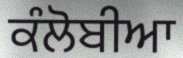
ਕੰਲੋਬੀਆ